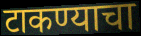
टाकण्याचा